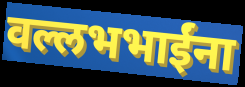
वल्लभभाईंना